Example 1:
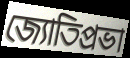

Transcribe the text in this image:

জ্যোতিপ্রভা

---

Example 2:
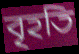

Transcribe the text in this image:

বৃহতি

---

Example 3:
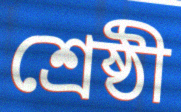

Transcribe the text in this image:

শ্রেষ্ঠী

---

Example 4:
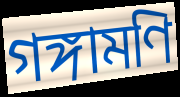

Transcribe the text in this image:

গঙ্গামণি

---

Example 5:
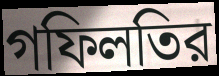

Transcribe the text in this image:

গফিলতির